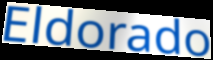
Eldorado